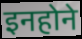
इनहोने